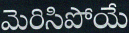
మెరిసిపోయే